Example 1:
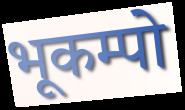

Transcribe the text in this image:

भूकम्पो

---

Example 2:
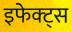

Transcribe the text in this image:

इफेक्‍ट्स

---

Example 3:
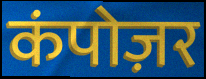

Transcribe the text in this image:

कंपोज़र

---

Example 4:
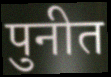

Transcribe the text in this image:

पुनीत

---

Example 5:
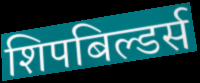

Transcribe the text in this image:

शिपबिल्डर्स